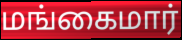
மங்கைமார்